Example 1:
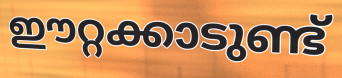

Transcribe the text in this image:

ഈറ്റക്കാടുണ്ട്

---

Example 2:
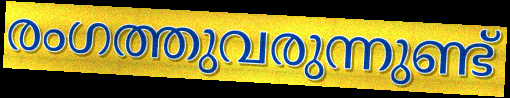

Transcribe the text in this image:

രംഗത്തുവരുന്നുണ്ട്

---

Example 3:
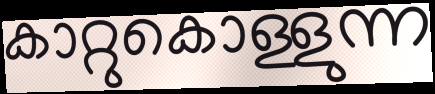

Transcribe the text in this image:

കാറ്റുകൊള്ളുന്ന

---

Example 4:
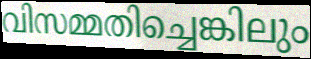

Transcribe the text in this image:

വിസമ്മതിച്ചെങ്കിലും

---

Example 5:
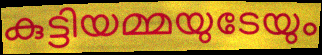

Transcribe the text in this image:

കുട്ടിയമ്മയുടേയും